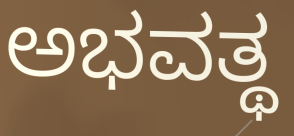
ಅಭವತ್ಥ